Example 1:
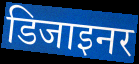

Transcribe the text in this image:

डिजाइनर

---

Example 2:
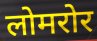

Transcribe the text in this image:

लोमरोर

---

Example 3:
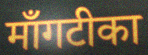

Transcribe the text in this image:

माँगटीका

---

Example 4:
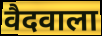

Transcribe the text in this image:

वैदवाला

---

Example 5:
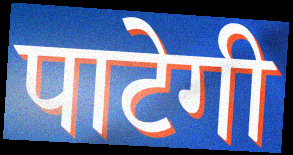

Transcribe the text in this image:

पाटेगी